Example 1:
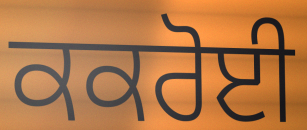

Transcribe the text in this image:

ਕਕਰੋਈ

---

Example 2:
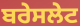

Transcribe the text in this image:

ਬਰੇਸਲੇਟ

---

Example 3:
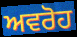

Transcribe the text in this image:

ਅਵਰੋਹ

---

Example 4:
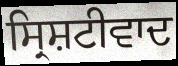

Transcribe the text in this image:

ਸ੍ਰਿਸ਼ਟੀਵਾਦ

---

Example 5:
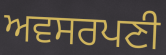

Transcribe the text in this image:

ਅਵਸਰਪਣੀ